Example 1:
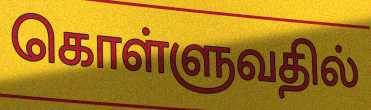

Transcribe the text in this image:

கொள்ளுவதில்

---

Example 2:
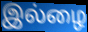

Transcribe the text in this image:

இல்ழை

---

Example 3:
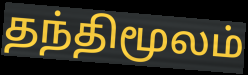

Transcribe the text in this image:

தந்திமூலம்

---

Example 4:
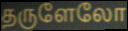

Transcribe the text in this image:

தருளேலோ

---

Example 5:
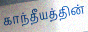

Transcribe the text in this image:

காந்தீயத்தின்